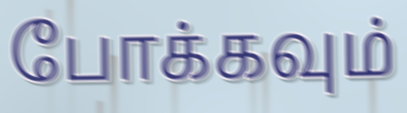
போக்கவும்